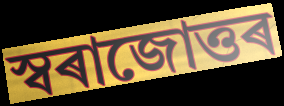
স্বৰাজোত্তৰ